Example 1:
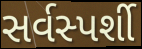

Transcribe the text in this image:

સર્વસ્પર્શી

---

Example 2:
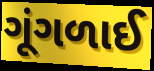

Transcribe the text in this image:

ગૂંગળાઈ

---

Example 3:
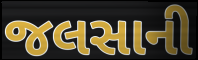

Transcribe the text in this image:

જલસાની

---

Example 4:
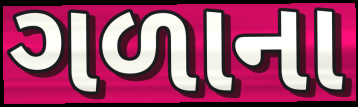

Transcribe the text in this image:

ગળાના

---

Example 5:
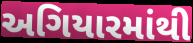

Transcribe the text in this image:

અગિયારમાંથી